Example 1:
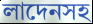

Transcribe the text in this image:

লাদেনসহ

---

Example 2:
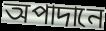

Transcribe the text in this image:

অপাদানে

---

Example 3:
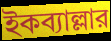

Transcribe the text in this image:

ইকব্যাল্লার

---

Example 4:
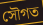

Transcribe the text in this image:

সৌগত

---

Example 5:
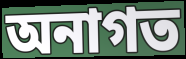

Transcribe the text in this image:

অনাগত